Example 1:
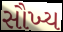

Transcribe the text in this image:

સૌખ્ય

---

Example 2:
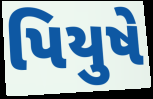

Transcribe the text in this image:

પિયુષે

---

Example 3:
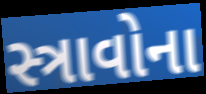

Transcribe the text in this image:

સ્ત્રાવોના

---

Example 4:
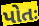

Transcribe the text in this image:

પોતઃ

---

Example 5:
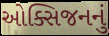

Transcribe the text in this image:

ઓક્સિજનનું